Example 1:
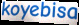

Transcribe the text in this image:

koyebisa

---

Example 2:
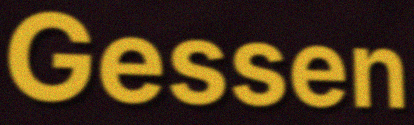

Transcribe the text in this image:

Gessen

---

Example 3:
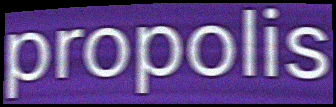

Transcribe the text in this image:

propolis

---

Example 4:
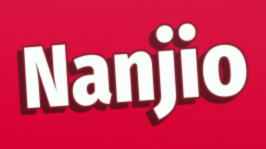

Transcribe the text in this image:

Nanjio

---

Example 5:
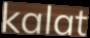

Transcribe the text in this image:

kalat